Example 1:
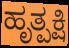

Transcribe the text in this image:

ಹೃತ್ಪಕ್ಷಿ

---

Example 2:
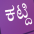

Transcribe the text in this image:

ಕಟ್ದಿ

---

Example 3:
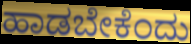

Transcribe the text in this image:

ಹಾಡಬೇಕೆಂದು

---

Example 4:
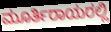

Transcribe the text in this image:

ಮೂರ್ತಿರಾಯರಲ್ಲಿ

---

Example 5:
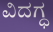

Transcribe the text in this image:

ವಿದಗ್ಧ